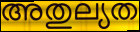
അതുല്യത